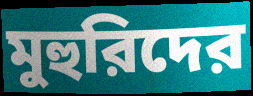
মুহুরিদের